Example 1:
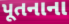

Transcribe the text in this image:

પૂતનાના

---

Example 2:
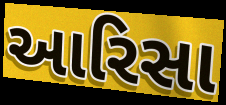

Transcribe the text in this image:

આરિસા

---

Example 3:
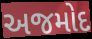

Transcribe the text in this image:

અજમોદ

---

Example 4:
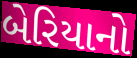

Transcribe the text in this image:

બેરિયાનો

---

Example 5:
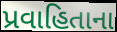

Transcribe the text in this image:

પ્રવાહિતાના